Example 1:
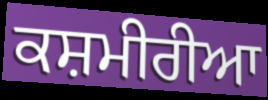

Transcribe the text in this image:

ਕਸ਼ਮੀਰੀਆ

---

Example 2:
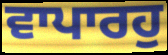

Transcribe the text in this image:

ਵਾਪਾਰਹੁ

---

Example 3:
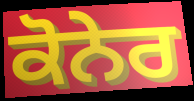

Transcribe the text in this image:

ਕੋਨੇਰ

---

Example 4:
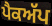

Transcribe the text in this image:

ਪੈਕਅੱਪ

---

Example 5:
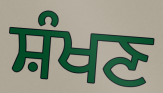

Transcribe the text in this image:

ਸ਼ੰਖਣ